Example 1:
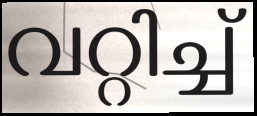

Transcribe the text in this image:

വറ്റിച്ച്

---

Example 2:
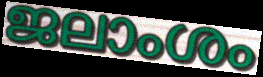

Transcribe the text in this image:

ജലാംശം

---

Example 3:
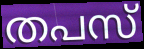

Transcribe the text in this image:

തപസ്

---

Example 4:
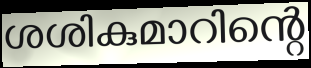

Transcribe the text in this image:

ശശികുമാറിന്റെ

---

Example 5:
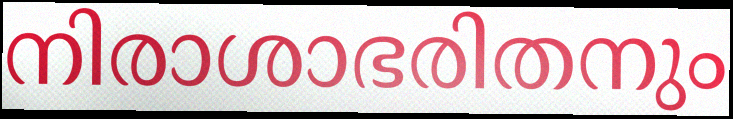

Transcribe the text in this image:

നിരാശാഭരിതനും